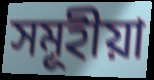
সমূহীয়া